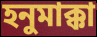
হনুমাক্কা